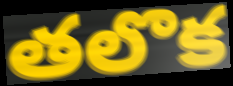
తలొక